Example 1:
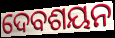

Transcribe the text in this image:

ଦେବଶୟନ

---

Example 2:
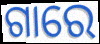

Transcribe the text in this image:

ଗାରେ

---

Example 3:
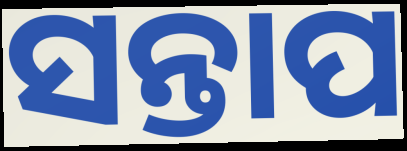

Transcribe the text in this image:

ସନ୍ତାପ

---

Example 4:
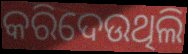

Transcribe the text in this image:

କରିଦେଉଥିଲି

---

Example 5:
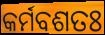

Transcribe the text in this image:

କର୍ମବଶତଃ